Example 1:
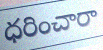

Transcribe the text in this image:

ధరించారా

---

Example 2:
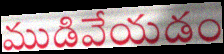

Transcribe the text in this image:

ముడివేయడం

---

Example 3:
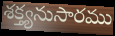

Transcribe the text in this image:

శక్త్యనుసారము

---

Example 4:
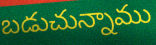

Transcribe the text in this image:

బడుచున్నాము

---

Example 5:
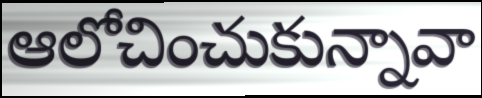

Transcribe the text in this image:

ఆలోచించుకున్నావా